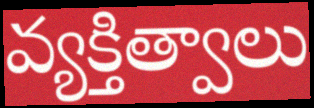
వ్యక్తిత్వాలు